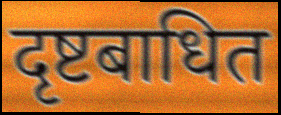
दृष्टबाधित